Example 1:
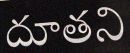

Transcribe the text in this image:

దూతని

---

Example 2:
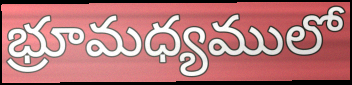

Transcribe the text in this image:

భ్రూమధ్యములో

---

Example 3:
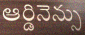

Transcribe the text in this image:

ఆర్డినెన్సు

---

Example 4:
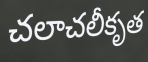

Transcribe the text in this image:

చలాచలీకృత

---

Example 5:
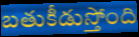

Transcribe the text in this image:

బతుకీడుస్తోంది